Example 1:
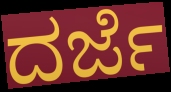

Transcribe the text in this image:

ದರ್ಜೆ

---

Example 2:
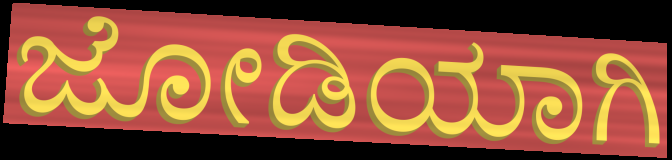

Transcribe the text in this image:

ಜೋಡಿಯಾಗಿ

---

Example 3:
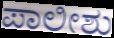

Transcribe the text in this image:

ಪಾಲೀಶು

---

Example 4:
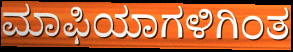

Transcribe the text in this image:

ಮಾಫಿಯಾಗಳಿಗಿಂತ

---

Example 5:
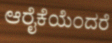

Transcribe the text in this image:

ಆರೈಕೆಯೆಂದರೆ